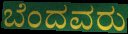
ಬೆಂದವರು